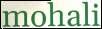
mohali